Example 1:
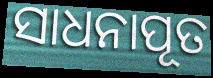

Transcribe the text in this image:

ସାଧନାପୂତ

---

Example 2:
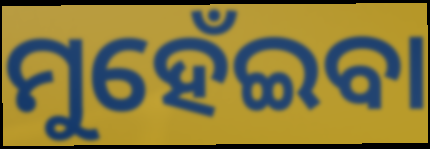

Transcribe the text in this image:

ମୁହେଁଇବା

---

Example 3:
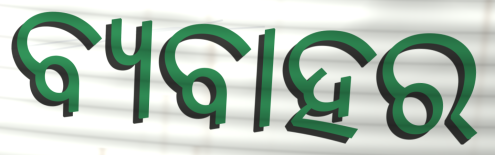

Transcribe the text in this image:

ବ୍ୟବାହର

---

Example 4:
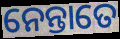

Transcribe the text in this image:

ନେନ୍ତାତେ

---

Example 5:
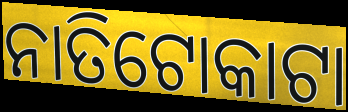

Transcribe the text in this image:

ନାତିଟୋକାଟା